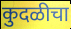
कुदळीचा